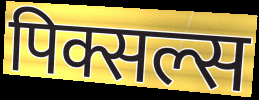
पिक्सल्स